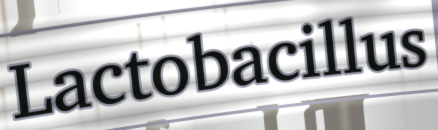
Lactobacillus